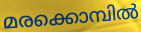
മരക്കൊമ്പിൽ